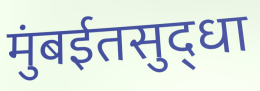
मुंबईतसुद्धा